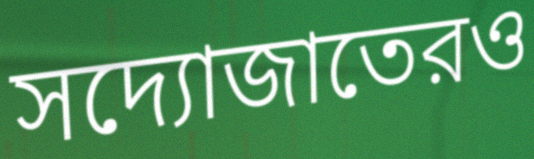
সদ্যোজাতেরও